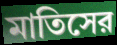
মাতিসের